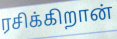
ரசிக்கிறான்